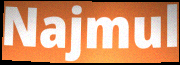
Najmul